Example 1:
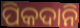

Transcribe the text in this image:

ପିକଦାନି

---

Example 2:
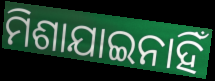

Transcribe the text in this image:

ମିଶାଯାଇନାହିଁ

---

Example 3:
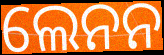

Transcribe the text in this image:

ଲେନନ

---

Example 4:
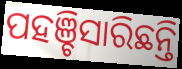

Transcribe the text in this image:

ପହଞ୍ଚିସାରିଛନ୍ତି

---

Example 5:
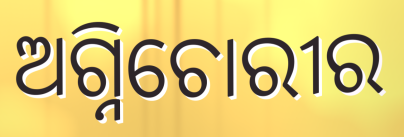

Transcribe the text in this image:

ଅଗ୍ନିଚୋରୀର